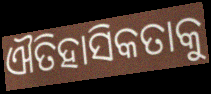
ଐତିହାସିକତାକୁ